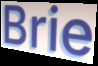
Brie